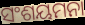
ସଂଶୟମନା